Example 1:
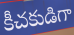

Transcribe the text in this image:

కీచకుడిగా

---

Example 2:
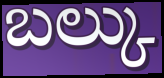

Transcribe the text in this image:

బల్కు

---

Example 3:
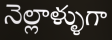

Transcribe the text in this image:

నెల్లాళ్ళుగా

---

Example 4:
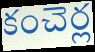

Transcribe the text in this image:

కంచెర్ల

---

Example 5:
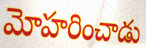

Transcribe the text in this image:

మోహరించాడు